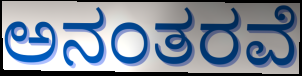
ಅನಂತರವೆ